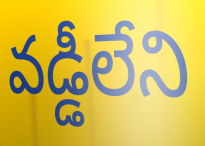
వడ్డీలేని